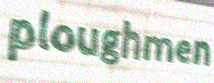
ploughmen